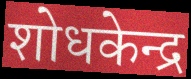
शोधकेन्द्र